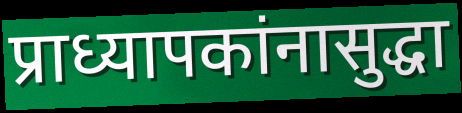
प्राध्यापकांनासुद्धा